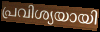
പ്രവിശ്യയായി